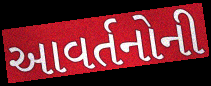
આવર્તનોની